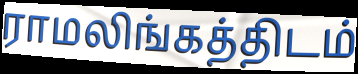
ராமலிங்கத்திடம்